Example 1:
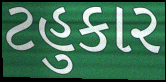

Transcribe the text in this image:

ટહુકાર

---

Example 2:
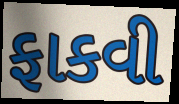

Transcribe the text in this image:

ફાકવી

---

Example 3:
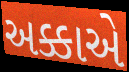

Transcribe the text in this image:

અક્કાએ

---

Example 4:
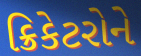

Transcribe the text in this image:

ક્રિકેટરોને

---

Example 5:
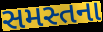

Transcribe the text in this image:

સમસ્તના